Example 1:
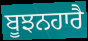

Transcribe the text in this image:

ਬੂਝਨਹਾਰੈ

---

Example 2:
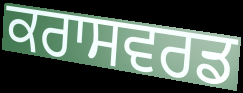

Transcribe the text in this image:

ਕਰਾਸਵਰਡ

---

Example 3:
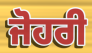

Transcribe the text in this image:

ਜੋਹਰੀ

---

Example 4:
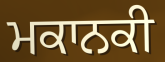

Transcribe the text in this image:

ਮਕਾਨਕੀ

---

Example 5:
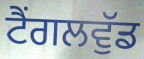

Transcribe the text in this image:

ਟੈਂਗਲਵੁੱਡ